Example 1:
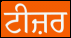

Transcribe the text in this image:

ਟੀਜ਼ਰ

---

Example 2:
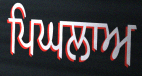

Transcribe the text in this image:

ਪਿਘਲਾਅ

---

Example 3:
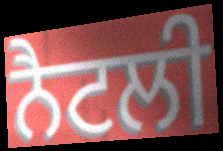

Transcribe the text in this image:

ਨੈਟਲੀ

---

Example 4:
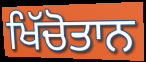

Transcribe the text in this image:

ਖਿੱਚੋਤਾਨ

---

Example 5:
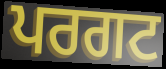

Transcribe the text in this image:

ਪਰਗਟ